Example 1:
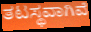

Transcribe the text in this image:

ತಟಸ್ಥವಾಗಿವೆ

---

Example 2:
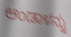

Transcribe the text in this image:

ಆಂಡಾಳನ್ನು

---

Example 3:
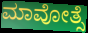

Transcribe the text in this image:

ಮಾವೋತ್ಸೆ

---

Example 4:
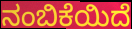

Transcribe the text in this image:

ನಂಬಿಕೆಯಿದೆ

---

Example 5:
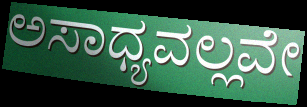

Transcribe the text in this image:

ಅಸಾಧ್ಯವಲ್ಲವೇ